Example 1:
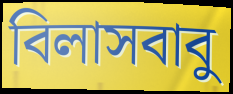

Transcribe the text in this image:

বিলাসবাবু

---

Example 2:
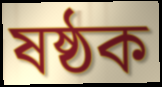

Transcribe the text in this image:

ষষ্ঠক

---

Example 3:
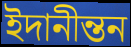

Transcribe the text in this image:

ইদানীন্তন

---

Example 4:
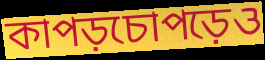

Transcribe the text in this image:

কাপড়চোপড়েও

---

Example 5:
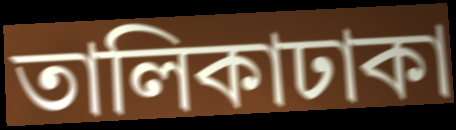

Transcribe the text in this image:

তালিকাঢাকা